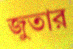
জুতার